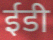
ईडी